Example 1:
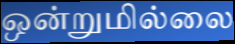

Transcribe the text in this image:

ஒன்றுமில்லை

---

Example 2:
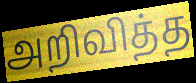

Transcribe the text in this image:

அறிவித்த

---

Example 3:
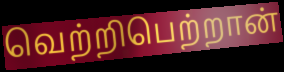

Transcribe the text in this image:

வெற்றிபெற்றான்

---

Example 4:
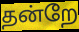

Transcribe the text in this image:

தன்றே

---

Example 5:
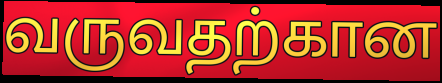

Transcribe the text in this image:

வருவதற்கான